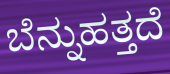
ಬೆನ್ನುಹತ್ತದೆ